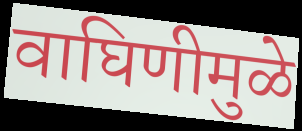
वाघिणीमुळे